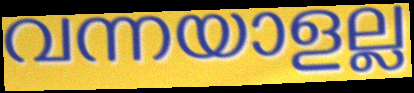
വന്നയാളല്ല